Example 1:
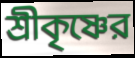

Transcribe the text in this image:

শ্রীকৃষ্ণের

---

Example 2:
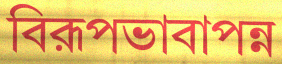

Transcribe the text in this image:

বিরূপভাবাপন্ন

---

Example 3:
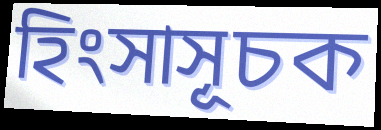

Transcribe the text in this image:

হিংসাসূচক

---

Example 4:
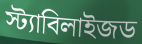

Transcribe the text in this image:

স্ট্যাবিলাইজড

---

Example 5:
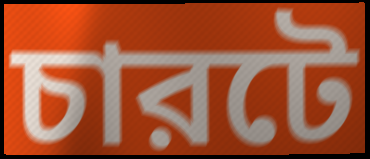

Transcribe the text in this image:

চারটে